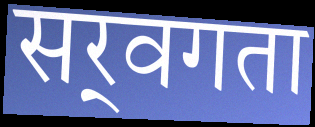
सर्वगता